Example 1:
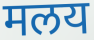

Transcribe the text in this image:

मलय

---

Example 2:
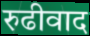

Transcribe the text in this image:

रुढीवाद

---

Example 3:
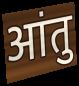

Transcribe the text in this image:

आंतु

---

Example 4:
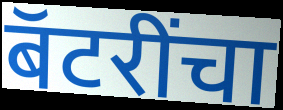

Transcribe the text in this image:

बॅटरींचा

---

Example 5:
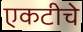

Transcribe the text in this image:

एकटीचे